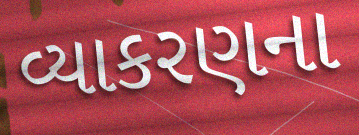
વ્યાકરણના